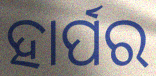
ହାର୍ପର